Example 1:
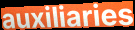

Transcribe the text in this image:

auxiliaries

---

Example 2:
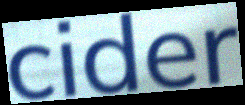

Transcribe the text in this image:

cider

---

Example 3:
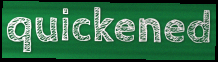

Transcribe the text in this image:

quickened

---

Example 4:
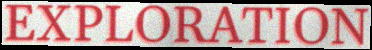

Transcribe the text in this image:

EXPLORATION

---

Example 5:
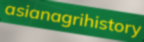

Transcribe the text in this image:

asianagrihistory